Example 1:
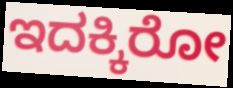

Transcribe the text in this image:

ಇದಕ್ಕಿರೋ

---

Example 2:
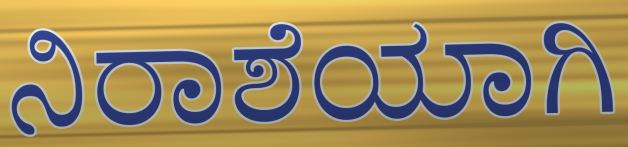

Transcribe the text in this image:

ನಿರಾಶೆಯಾಗಿ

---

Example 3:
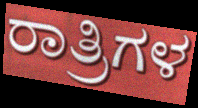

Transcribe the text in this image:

ರಾತ್ರಿಗಳ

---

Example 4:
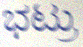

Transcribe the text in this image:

ಭಟ್ರು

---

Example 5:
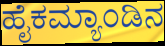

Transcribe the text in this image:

ಹೈಕಮ್ಯಾಂಡಿನ